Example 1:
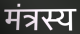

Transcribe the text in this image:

मंत्रस्य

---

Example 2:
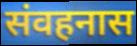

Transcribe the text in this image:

संवहनास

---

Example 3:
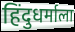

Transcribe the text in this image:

हिंदुधर्माला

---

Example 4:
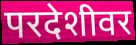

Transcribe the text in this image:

परदेशीवर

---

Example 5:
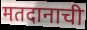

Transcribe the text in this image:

मतदानाची